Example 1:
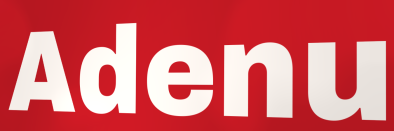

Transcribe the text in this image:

Adenu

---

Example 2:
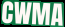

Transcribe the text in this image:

CWMA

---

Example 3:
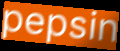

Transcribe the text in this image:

pepsin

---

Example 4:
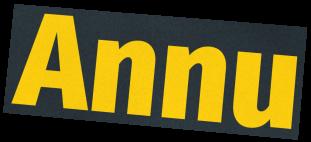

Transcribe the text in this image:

Annu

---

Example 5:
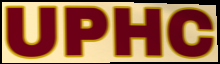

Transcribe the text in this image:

UPHC